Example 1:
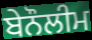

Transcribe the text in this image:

ਬੇਨੌਲੀਮ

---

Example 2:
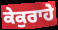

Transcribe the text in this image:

ਕੇਕੁਰਾਹੇ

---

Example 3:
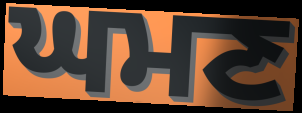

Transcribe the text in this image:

ਘਮਣ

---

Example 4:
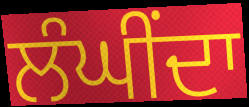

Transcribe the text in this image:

ਲੰਘੀਂਦਾ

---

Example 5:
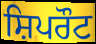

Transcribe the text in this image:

ਸ਼ਿਪਰੌਟ